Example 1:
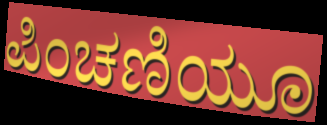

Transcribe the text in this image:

ಪಿಂಚಣಿಯೂ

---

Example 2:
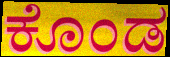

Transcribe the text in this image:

ಕೊಂಡ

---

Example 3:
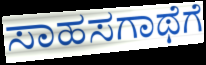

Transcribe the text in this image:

ಸಾಹಸಗಾಥೆಗೆ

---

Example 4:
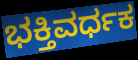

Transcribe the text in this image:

ಭಕ್ತಿವರ್ಧಕ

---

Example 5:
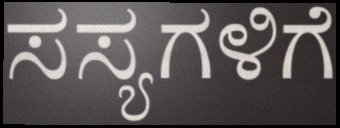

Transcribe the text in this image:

ಸಸ್ಯಗಳಿಗೆ